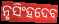
ନୃସିଂହଦେବ